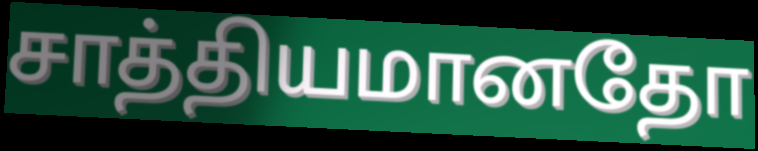
சாத்தியமானதோ